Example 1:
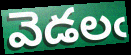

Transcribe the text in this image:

వెడలఁ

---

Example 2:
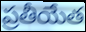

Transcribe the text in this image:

ప్రతీయేత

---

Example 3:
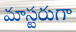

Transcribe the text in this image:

మాస్టరుగా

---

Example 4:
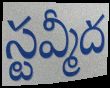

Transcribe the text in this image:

స్టవ్మీద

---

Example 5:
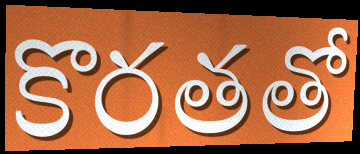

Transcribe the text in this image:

కొరతతో